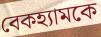
বেকহ্যামকে